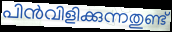
പിൻവിളിക്കുന്നതുണ്ട്